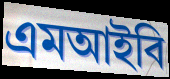
এমআইবি